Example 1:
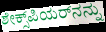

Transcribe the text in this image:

ಶೇಕ್ಸ್‌ಪಿಯರ್‌ನನ್ನು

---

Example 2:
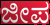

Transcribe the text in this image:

ಜೀಪ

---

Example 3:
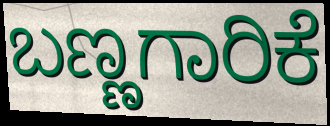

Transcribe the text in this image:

ಬಣ್ಣಗಾರಿಕೆ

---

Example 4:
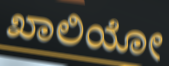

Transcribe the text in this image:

ಖಾಲಿಯೋ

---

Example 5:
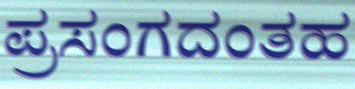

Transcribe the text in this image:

ಪ್ರಸಂಗದಂತಹ